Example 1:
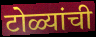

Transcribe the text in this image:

टोळ्यांची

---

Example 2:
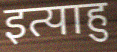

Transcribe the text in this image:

इत्याहु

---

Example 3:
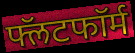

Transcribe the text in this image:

फ्लॅटफॉर्म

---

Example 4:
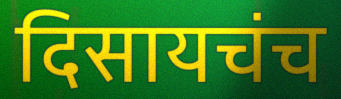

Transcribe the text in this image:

दिसायचंच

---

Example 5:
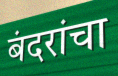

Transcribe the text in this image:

बंदरांचा